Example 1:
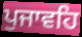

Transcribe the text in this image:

ਪੁਜਾਵਹਿ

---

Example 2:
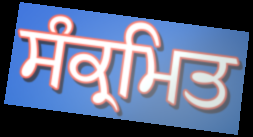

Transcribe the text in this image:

ਸੰਕ੍ਰਮਿਤ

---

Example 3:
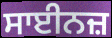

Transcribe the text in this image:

ਸਾਈਨਜ਼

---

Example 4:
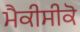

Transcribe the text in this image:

ਮੈਕੀਸੀਕੋ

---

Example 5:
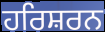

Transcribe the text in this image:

ਹਰਿਸ਼ਰਨ